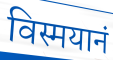
विस्मयानं